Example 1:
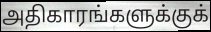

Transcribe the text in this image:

அதிகாரங்களுக்குக்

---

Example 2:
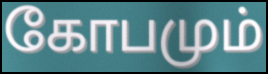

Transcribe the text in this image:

கோபமும்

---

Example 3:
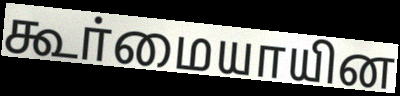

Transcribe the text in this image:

கூர்மையாயின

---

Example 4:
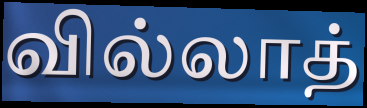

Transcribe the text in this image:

வில்லாத்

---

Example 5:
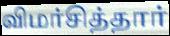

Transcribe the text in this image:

விமர்சித்தார்